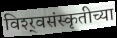
विश्र्वसंस्कृतीच्या